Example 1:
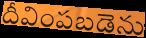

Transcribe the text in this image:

దీవింపబడెను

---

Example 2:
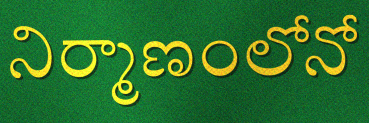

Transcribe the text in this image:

నిర్మాణంలోనో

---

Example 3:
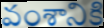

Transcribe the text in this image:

వంశానికి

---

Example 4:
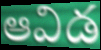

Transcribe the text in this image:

ఆవిడ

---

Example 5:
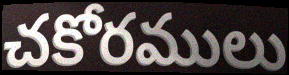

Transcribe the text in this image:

చకోరములు